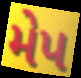
મેપ